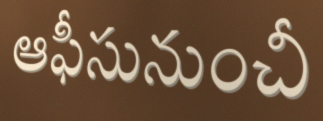
ఆఫీసునుంచీ